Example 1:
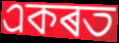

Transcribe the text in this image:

একৰত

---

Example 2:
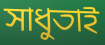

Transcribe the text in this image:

সাধুতাই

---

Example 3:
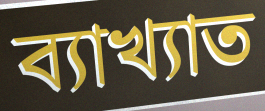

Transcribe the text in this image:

ব্যাখ্যাত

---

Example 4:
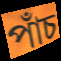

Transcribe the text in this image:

পাঁচ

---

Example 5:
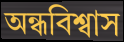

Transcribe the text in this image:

অন্ধবিশ্বাস